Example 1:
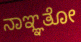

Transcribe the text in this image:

ನಾಞ್ಞತೋ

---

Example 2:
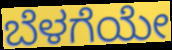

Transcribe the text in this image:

ಬೆಳಗೆಯೇ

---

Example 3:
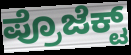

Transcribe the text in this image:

ಪ್ರೊಜೆಕ್ಟ್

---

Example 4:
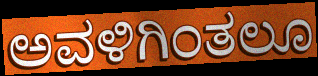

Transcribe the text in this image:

ಅವಳಿಗಿಂತಲೂ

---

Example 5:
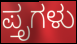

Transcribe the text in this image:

ಪ್ತೃಗಳು